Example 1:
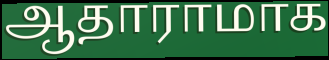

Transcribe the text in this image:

ஆதாராமாக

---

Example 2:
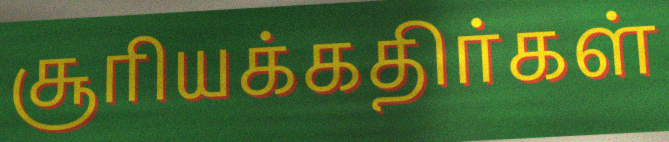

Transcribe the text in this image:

சூரியக்கதிர்கள்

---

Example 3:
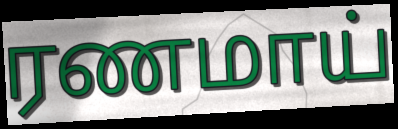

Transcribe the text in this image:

ரணமாய்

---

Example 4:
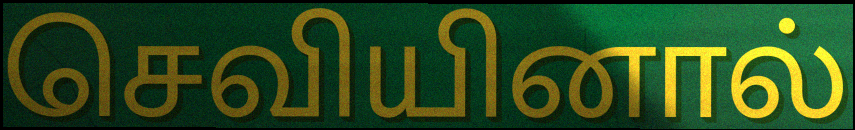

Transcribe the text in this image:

செவியினால்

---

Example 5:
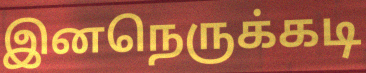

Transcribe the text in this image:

இனநெருக்கடி